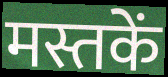
मस्तकें